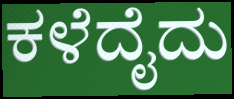
ಕಳೆದೈದು